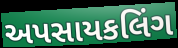
અપસાયકલિંગ